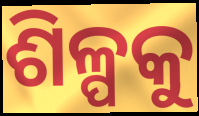
ଶିଳ୍ପକୁ